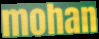
mohan